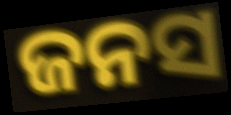
ଜନସ